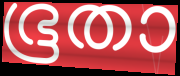
ഭൂതാ